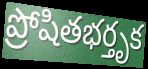
ప్రోషితభర్తృక